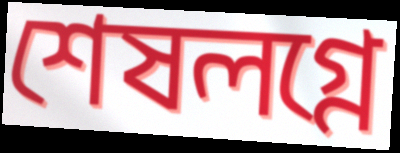
শেষলগ্নে